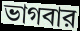
ভাগবার